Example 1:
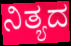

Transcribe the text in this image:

ನಿತ್ಯದ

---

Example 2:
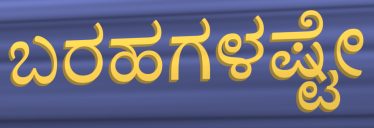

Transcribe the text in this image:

ಬರಹಗಳಷ್ಟೇ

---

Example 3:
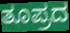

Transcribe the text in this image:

ತೂಪ್ರದ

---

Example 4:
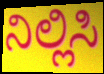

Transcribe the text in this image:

ನಿಲ್ಲಿಸಿ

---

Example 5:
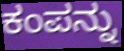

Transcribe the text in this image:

ಕಂಪನ್ನು